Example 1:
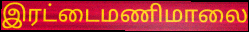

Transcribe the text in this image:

இரட்டைமணிமாலை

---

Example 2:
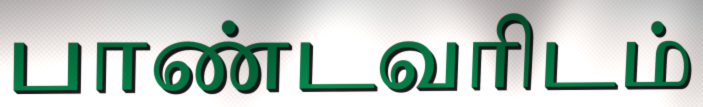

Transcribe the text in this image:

பாண்டவரிடம்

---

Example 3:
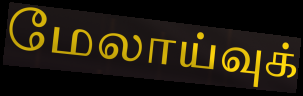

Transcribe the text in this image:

மேலாய்வுக்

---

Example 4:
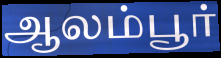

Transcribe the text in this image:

ஆலம்பூர்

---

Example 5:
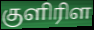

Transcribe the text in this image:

குளிரிள